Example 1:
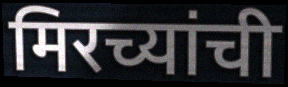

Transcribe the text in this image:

मिरच्यांची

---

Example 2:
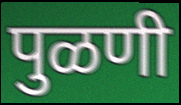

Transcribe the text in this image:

पुळणी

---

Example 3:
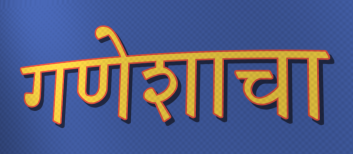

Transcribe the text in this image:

गणेशाचा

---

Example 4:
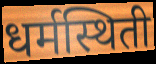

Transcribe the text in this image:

धर्मस्थिती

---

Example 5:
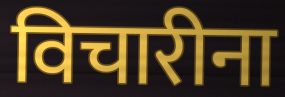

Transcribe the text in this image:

विचारीना